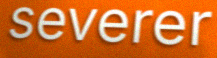
severer